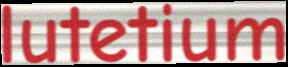
lutetium